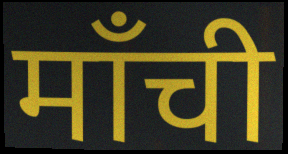
माँची